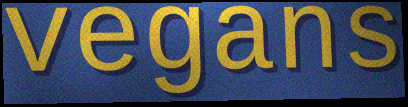
vegans